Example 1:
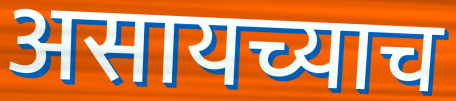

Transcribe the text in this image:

असायच्याच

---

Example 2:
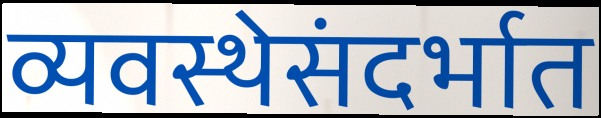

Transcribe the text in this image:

व्यवस्थेसंदर्भात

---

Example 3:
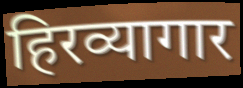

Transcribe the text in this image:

हिरव्यागार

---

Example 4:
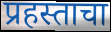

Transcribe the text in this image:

प्रहस्ताचा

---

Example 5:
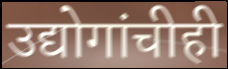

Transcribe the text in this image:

उद्योगांचीही